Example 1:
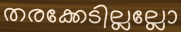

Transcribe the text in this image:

തരക്കേടില്ലല്ലോ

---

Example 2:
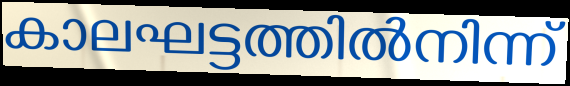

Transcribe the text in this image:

കാലഘട്ടത്തിൽനിന്ന്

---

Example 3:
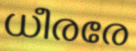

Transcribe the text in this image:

ധീരരേ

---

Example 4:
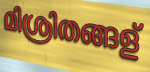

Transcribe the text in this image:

മിശ്രിതങ്ങള്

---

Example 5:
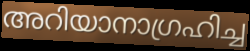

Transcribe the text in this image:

അറിയാനാഗ്രഹിച്ച